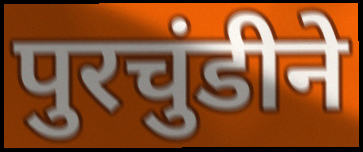
पुरचुंडीने